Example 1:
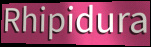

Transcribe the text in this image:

Rhipidura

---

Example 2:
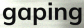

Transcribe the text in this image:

gaping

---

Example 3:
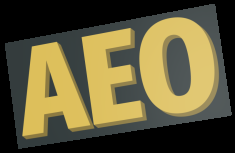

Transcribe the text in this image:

AEO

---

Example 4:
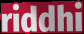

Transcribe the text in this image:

riddhi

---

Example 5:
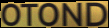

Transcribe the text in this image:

OTOND